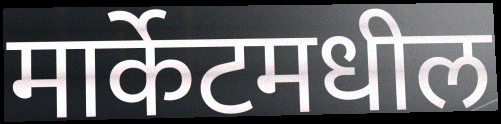
मार्केटमधील